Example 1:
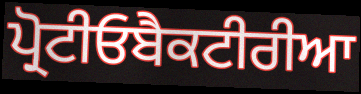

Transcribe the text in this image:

ਪ੍ਰੋਟੀਓਬੈਕਟੀਰੀਆ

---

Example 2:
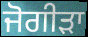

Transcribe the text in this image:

ਜੋਗੀੜਾ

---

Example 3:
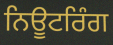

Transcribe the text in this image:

ਨਿਊਟਰਿੰਗ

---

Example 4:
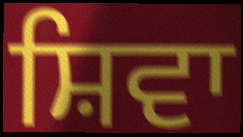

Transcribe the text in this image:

ਸ਼ਿਵਾ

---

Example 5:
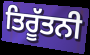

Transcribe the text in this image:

ਤਿਰੂੱਤਨੀ